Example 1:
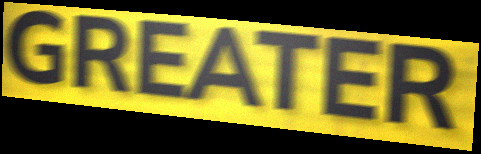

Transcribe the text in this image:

GREATER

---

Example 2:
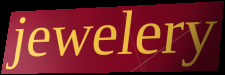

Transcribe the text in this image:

jewelery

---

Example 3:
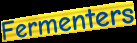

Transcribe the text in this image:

Fermenters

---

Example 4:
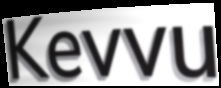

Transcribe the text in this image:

Kevvu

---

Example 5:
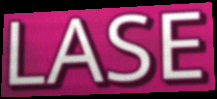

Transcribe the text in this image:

LASE